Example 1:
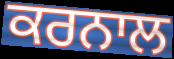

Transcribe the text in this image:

ਕਰਨਾਲ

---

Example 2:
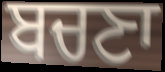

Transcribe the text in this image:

ਬਚਣਾ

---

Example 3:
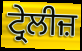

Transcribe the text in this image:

ਟ੍ਰੇਲੀਜ਼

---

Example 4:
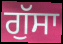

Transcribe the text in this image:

ਗੁੱਸਾ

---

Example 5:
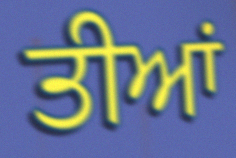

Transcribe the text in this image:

ਤੀਆਂ